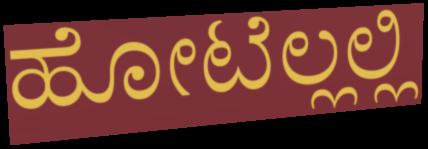
ಹೋಟೆಲ್ಲಲ್ಲಿ